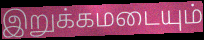
இறுக்கமடையும்